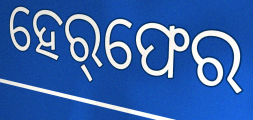
ହେର୍‌ଫେର